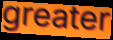
greater